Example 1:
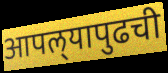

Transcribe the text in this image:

आपल्यापुढची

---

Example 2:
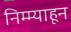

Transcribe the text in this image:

निम्म्याहून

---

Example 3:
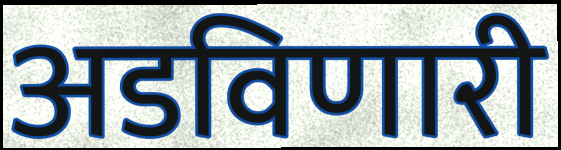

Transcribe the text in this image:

अडविणारी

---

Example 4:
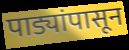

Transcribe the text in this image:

पाड्यांपासून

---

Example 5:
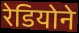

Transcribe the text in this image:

रेडियोने